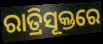
ରାତ୍ରିସୂକ୍ତରେ